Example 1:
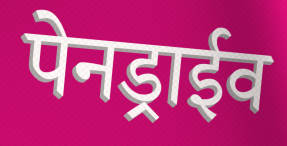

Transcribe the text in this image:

पेनड्राईव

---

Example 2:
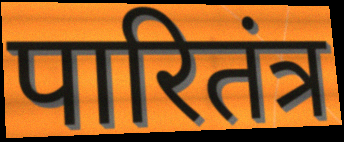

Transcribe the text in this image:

पारितंत्र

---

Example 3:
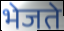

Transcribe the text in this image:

भेजते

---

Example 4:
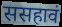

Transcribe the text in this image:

ससहावं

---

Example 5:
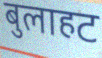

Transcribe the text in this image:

बुलाहट